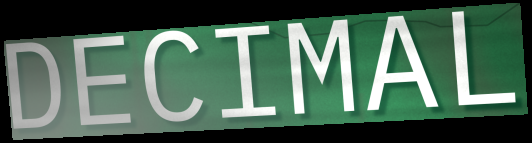
DECIMAL